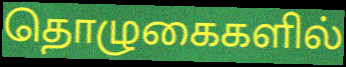
தொழுகைகளில்